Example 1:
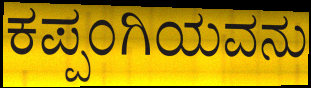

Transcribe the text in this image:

ಕಪ್ಪಂಗಿಯವನು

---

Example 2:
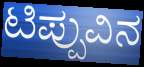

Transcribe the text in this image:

ಟಿಪ್ಪುವಿನ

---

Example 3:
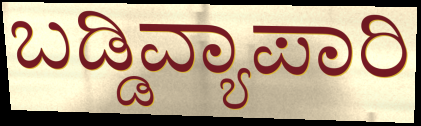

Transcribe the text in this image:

ಬಡ್ಡಿವ್ಯಾಪಾರಿ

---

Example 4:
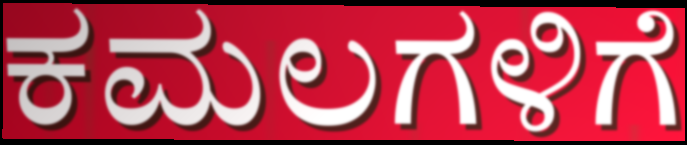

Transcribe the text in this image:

ಕಮಲಗಳಿಗೆ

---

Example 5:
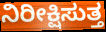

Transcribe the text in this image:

ನಿರೀಕ್ಷಿಸುತ್ತ